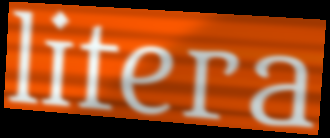
litera